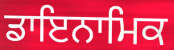
ਡਾਇਨਾਮਿਕ